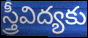
స్త్రీవిద్యకు